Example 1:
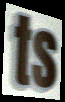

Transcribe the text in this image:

ts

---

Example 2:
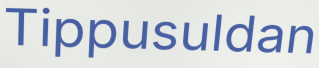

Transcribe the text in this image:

Tippusuldan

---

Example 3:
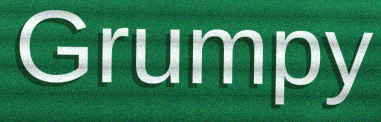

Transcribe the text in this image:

Grumpy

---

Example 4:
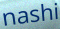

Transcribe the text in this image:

nashi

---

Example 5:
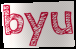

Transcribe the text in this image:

byu